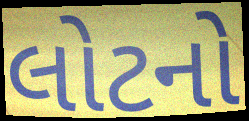
લોટનો